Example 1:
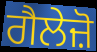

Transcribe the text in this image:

ਗੈਲੇਜ਼ੋ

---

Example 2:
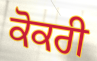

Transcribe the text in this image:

ਕੋਕਰੀ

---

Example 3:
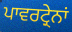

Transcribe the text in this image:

ਪਾਵਰਟ੍ਰੇਨਾਂ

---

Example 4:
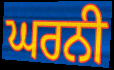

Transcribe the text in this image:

ਘਰਨੀ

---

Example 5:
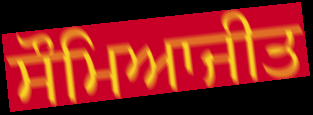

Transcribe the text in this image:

ਸੌਮਿਆਜੀਤ